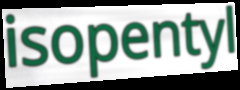
isopentyl